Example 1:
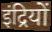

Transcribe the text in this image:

इंद्रियों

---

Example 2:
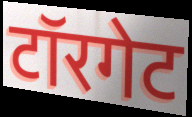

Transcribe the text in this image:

टॉरगेट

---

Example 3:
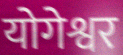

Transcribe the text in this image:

योगेश्वर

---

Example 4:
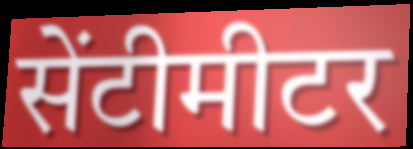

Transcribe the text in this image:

सेंटीमीटर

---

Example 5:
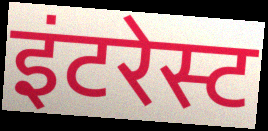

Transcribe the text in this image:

इंटरेस्ट